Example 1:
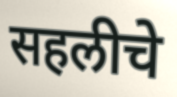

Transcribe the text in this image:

सहलीचे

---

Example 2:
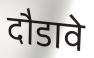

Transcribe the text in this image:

दौडावे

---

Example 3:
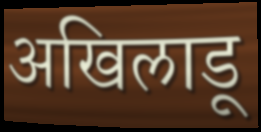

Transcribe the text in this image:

अखिलाडू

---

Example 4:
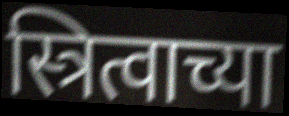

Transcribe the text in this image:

स्त्रित्वाच्या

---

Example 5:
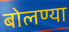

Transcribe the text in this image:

बोलण्या